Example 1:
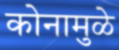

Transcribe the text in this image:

कोनामुळे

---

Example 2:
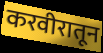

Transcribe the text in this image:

करवीरातून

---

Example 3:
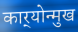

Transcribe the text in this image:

कार्योन्मुख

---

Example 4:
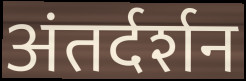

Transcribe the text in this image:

अंतर्दर्शन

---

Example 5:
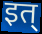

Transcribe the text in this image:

इत्